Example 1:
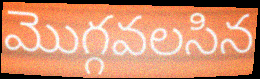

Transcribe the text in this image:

మొగ్గవలసిన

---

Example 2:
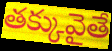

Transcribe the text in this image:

తక్కువైతే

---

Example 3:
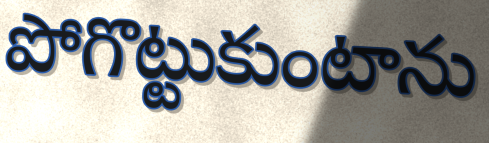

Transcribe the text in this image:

పోగొట్టుకుంటాను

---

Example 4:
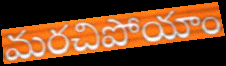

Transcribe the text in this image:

మరచిపోయాం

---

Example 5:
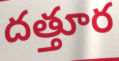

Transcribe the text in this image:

దత్తూర